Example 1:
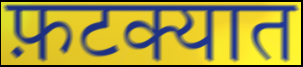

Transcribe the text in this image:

फ़टक्यात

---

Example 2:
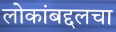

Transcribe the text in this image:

लोकांबद्दलचा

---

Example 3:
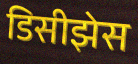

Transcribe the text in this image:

डिसीझेस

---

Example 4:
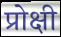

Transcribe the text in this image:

प्रोक्षी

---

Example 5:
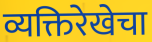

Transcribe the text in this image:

व्यक्तिरेखेचा